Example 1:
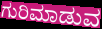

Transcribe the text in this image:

ಗುರಿಮಾಡುವ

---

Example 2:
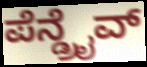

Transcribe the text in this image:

ಪೆನ್ಡ್ರೈವ್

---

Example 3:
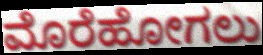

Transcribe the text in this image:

ಮೊರೆಹೋಗಲು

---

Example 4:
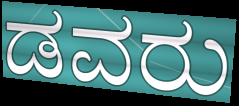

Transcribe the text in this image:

ಡವರು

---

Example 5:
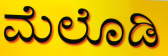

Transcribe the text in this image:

ಮೆಲೊಡಿ